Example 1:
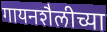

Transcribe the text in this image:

गायनशैलीच्या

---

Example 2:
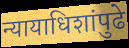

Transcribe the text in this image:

न्यायाधिशांपुढे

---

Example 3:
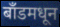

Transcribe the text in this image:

बाँडमधून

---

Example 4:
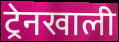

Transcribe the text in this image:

ट्रेनखाली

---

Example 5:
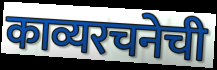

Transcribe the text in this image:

काव्यरचनेची